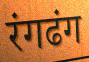
रंगढंग